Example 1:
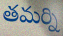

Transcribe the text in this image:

తమర్ని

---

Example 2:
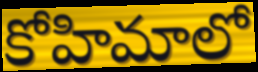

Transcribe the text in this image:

కోహిమాలో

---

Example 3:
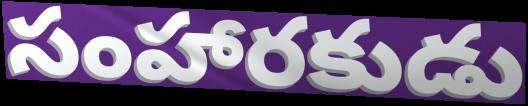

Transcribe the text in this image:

సంహారకుడు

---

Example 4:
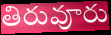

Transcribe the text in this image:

తిరువూరు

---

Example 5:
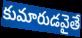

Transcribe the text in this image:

కుమారుడవైతే